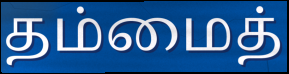
தம்மைத்